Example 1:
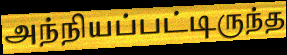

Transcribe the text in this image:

அந்நியப்பட்டிருந்த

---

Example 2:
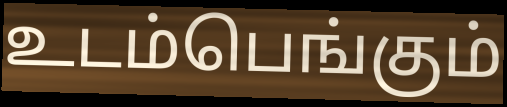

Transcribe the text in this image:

உடம்பெங்கும்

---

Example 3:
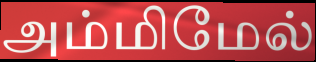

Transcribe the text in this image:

அம்மிமேல்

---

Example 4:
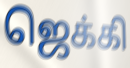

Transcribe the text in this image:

ஜெக்கி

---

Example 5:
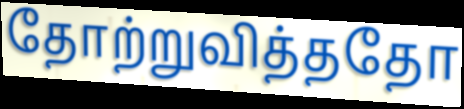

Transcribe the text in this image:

தோற்றுவித்ததோ